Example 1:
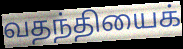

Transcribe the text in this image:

வதந்தியைக்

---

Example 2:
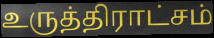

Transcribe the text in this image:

உருத்திராட்சம்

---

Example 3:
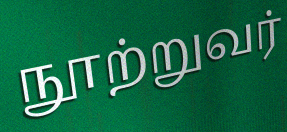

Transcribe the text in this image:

நூற்றுவர்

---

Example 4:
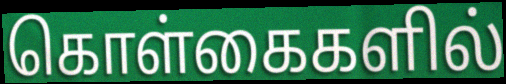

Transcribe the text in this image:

கொள்கைகளில்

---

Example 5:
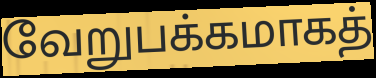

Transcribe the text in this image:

வேறுபக்கமாகத்